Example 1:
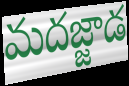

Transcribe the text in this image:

మదజ్జాడ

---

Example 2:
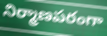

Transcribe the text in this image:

నిర్మాణపరంగా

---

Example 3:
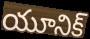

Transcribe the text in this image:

యూనిక్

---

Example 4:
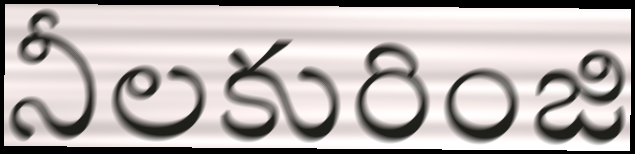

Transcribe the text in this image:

నీలకురింజి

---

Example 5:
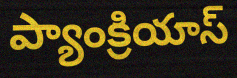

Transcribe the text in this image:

ప్యాంక్రియాస్